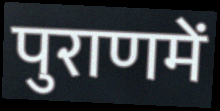
पुराणमें